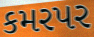
કમરપર